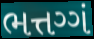
ભત્તગ્ગં